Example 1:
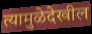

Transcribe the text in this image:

त्यामुळेदेखील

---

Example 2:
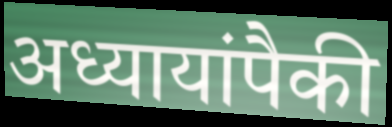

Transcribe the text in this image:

अध्यायांपैकी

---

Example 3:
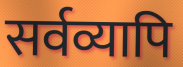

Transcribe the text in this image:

सर्वव्यापि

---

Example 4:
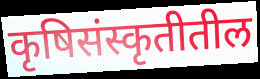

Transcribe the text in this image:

कृषिसंस्कृतीतील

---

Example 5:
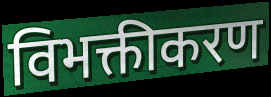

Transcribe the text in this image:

विभक्तीकरण